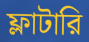
ফ্লাটারি